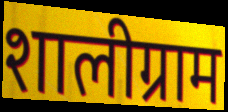
शालीग्राम